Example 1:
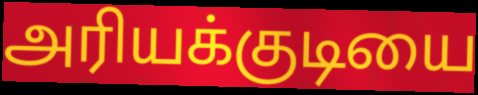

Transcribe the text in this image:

அரியக்குடியை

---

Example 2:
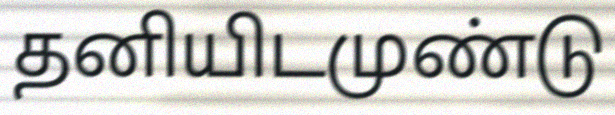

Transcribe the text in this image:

தனியிடமுண்டு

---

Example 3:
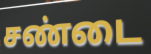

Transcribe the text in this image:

சண்டை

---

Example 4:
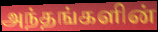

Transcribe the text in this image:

அந்தங்களின்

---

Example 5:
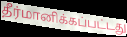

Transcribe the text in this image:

தீர்மானிக்கப்பட்டது